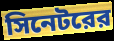
সিনেটরের